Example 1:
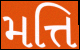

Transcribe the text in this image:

મત્તિ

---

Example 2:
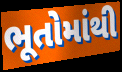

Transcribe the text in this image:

ભૂતોમાંથી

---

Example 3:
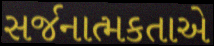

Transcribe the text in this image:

સર્જનાત્મકતાએ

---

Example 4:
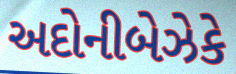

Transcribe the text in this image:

અદોનીબેઝેકે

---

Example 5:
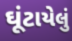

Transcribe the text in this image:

ઘૂંટાયેલું